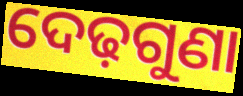
ଦେଢ଼ଗୁଣା